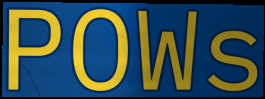
POWs